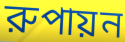
রুপায়ন